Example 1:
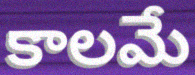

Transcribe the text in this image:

కాలమే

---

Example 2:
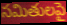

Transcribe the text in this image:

సమితులపై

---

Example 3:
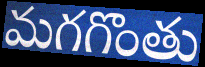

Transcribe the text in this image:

మగగొంతు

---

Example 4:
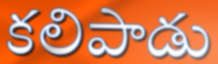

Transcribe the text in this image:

కలిపాడు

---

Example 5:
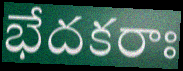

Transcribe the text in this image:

భేదకరాః